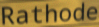
Rathode